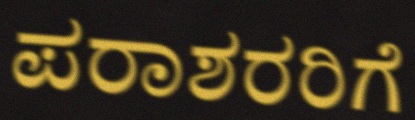
ಪರಾಶರರಿಗೆ